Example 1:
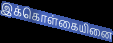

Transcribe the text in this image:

இக்கொள்கையினை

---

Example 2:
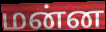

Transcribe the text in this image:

மன்ன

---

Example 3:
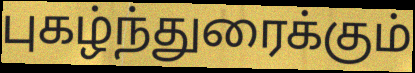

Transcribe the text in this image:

புகழ்ந்துரைக்கும்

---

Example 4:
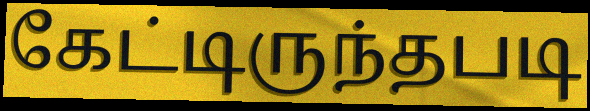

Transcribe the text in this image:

கேட்டிருந்தபடி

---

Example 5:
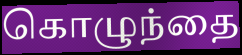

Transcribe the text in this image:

கொழுந்தை